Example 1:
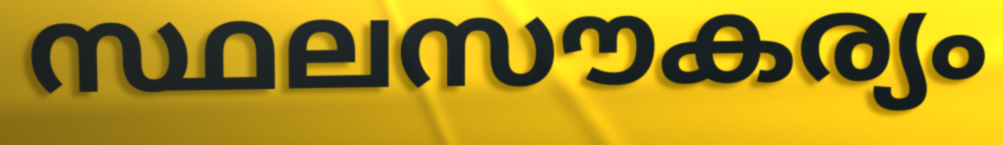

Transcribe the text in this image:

സ്ഥലസൗകര്യം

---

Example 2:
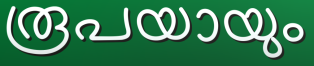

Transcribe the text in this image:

രൂപയായും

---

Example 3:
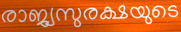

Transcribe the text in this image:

രാജ്യസുരക്ഷയുടെ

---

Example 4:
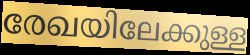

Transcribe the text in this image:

രേഖയിലേക്കുള്ള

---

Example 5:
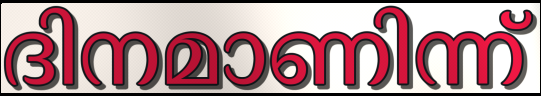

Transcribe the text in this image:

ദിനമാണിന്ന്